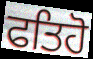
ਫਤਿਹੋ